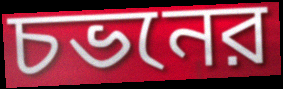
চভনের